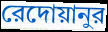
রেদোয়ানুর